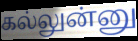
கல்லுன்னு